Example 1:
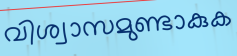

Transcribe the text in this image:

വിശ്വാസമുണ്ടാകുക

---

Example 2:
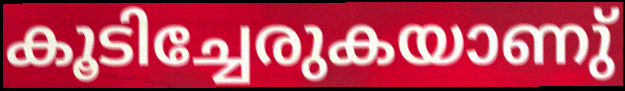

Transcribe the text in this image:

കൂടിച്ചേരുകയാണു്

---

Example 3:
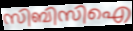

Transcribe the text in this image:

സിബിസിഐ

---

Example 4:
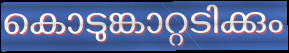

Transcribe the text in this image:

കൊടുങ്കാറ്റടിക്കും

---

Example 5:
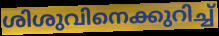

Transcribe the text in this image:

ശിശുവിനെക്കുറിച്ച്